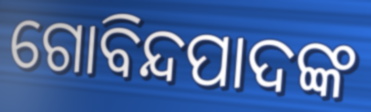
ଗୋବିନ୍ଦପାଦଙ୍କ